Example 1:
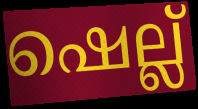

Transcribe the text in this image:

ഷെല്ല്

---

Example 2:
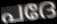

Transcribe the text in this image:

പദേ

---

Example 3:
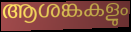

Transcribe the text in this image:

ആശങ്കകളും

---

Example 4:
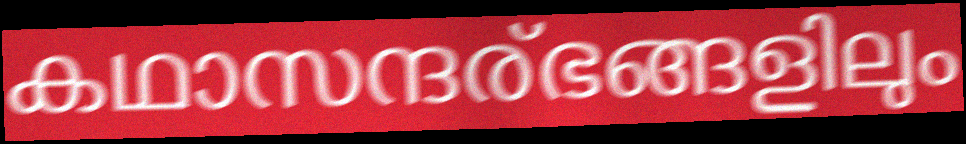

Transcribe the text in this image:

കഥാസന്ദര്ഭങ്ങളിലും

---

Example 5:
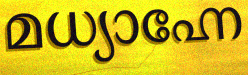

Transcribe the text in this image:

മധ്യാഹ്നേ